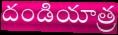
దండియాత్ర